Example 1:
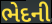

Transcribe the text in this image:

ભેદની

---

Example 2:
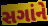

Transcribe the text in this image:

સગાંને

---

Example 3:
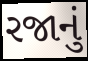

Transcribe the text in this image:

રજાનું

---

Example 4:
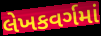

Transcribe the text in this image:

લેખકવર્ગમાં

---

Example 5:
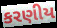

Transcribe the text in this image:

કરણીય